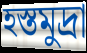
হস্তমুদ্রা